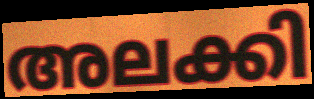
അലക്കി